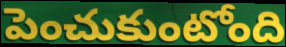
పెంచుకుంటోంది